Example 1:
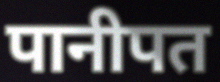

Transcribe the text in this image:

पानीपत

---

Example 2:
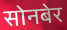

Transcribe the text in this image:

सोनबेर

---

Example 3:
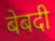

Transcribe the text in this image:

बेबदी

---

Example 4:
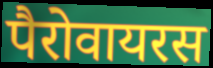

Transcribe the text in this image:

पैरोवायरस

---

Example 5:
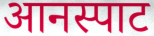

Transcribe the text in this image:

आनस्पाट